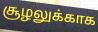
சூழலுக்காக